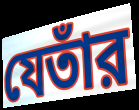
যেতাঁর